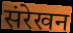
संरेखन